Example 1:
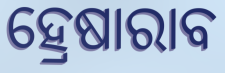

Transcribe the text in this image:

ହ୍ରେଷାରାବ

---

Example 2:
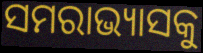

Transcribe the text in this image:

ସମରାଭ୍ୟାସକୁ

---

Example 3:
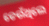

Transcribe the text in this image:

ଡେଉଁଥିଲେ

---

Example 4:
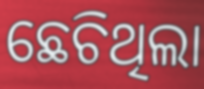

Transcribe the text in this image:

ଛେଚିଥିଲା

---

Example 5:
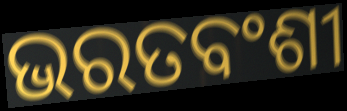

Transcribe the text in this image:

ଭରତବଂଶୀ